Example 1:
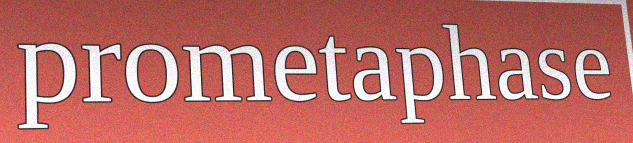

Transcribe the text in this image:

prometaphase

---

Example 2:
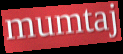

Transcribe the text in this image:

mumtaj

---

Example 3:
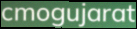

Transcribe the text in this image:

cmogujarat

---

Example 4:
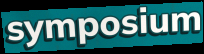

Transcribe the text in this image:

symposium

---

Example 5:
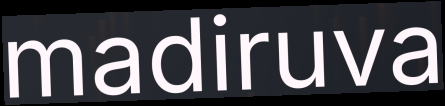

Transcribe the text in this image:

madiruva